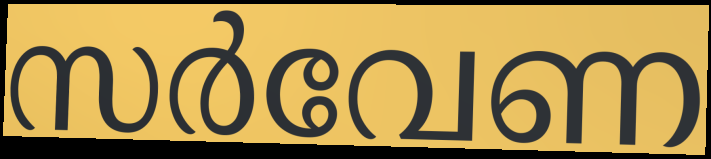
സർവേണ